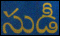
సుడీ